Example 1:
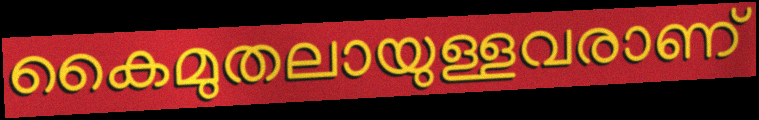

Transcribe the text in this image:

കൈമുതലായുള്ളവരാണ്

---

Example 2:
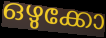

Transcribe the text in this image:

ഒഴുക്കോ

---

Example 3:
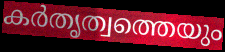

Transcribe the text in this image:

കർതൃത്വത്തെയും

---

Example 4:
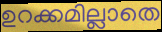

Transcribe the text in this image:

ഉറക്കമില്ലാതെ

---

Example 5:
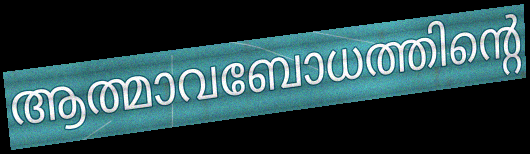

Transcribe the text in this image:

ആത്മാവബോധത്തിന്റെ